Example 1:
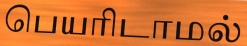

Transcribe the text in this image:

பெயரிடாமல்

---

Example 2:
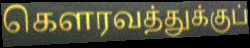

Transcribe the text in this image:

கௌரவத்துக்குப்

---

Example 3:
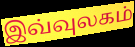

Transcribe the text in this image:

இவ்வுலகம்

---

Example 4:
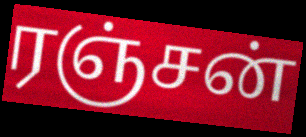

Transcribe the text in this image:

ரஞ்சன்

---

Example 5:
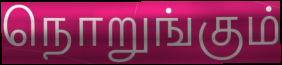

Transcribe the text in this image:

நொறுங்கும்